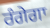
ਰੰਗੇਗਾ